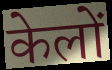
केलों